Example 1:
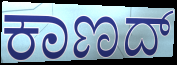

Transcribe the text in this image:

ಕಾಣದ್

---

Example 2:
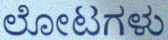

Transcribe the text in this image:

ಲೋಟಗಳು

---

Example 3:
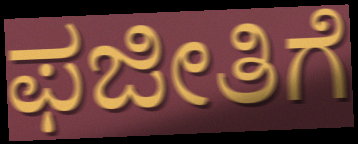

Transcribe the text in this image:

ಫಜೀತಿಗೆ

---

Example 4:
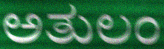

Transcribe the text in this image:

ಅತುಲಂ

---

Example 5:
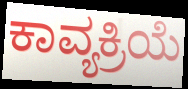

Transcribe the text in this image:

ಕಾವ್ಯಕ್ರಿಯೆ